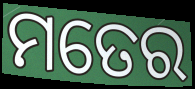
ମତେର